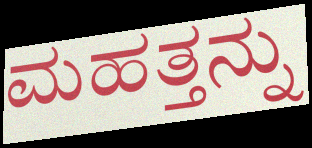
ಮಹತ್ತನ್ನು